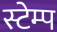
स्टेम्प